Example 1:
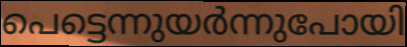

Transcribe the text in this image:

പെട്ടെന്നുയർന്നുപോയി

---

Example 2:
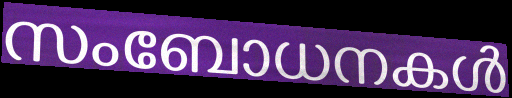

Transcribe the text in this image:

സംബോധനകൾ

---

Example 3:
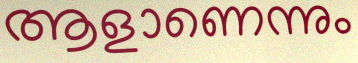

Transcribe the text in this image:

ആളാണെന്നും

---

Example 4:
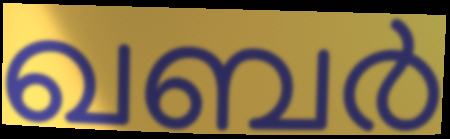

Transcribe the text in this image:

ഖബർ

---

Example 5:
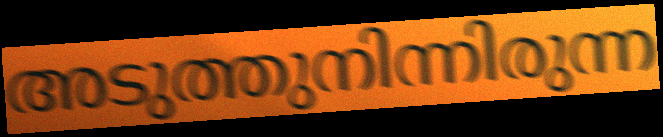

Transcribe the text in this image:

അടുത്തുനിന്നിരുന്ന